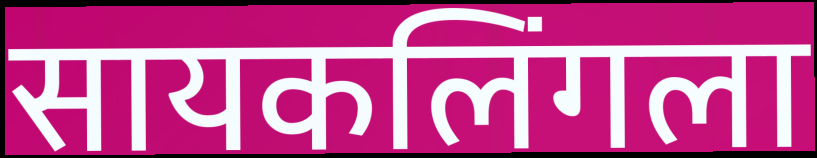
सायकलिंगला